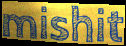
mishit